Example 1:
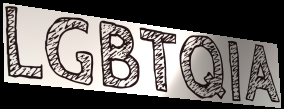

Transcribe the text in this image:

LGBTQIA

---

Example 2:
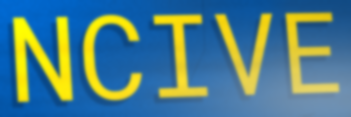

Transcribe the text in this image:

NCIVE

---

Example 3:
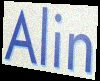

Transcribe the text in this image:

Alin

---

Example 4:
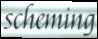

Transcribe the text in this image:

scheming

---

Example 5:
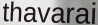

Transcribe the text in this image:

thavarai